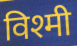
विश्मी